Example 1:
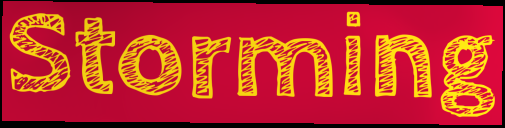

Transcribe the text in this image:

Storming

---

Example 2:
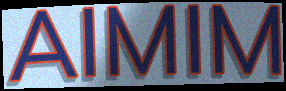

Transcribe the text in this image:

AIMIM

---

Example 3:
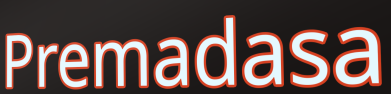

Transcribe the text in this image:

Premadasa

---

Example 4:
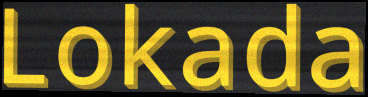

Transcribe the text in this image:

Lokada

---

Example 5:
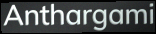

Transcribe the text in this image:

Anthargami